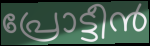
പ്രോട്ടീൻ